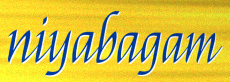
niyabagam